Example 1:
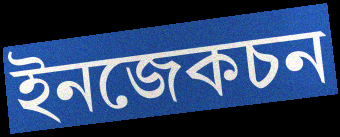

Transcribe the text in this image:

ইনজেকচন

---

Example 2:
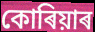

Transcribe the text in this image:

কোৰিয়াৰ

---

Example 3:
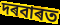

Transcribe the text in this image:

দৰবাৰত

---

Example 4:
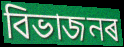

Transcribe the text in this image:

বিভাজনৰ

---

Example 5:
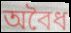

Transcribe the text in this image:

অবৈধ